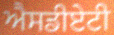
ਐਸਡੀਏਟੀ